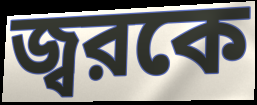
জ্বরকে